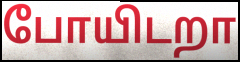
போயிடறா